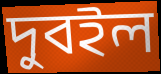
দুবইল